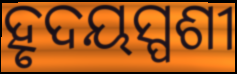
ହୃଦୟସ୍ପଶୀ